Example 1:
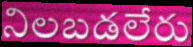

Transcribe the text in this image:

నిలబడలేరు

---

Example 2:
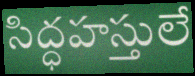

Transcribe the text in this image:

సిద్ధహస్తులే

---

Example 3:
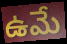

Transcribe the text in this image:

ఉమే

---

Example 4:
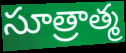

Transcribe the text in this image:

సూత్రాత్మ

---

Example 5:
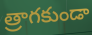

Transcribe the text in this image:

త్రాగకుండా